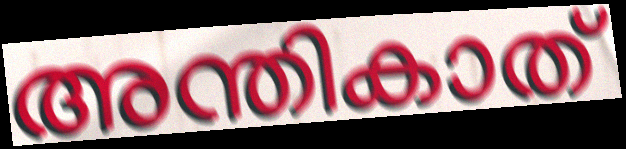
അന്തികാത്